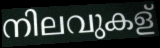
നിലവുകള്